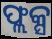
ଫ୍ଲକ୍ସ